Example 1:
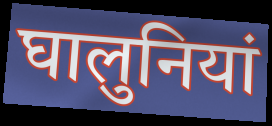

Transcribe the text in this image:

घालुनियां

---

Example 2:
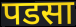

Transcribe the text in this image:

पडसा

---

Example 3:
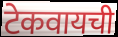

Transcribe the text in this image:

टेकवायची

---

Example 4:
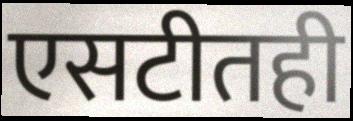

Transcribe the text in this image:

एसटीतही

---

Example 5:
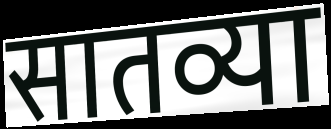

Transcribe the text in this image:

सातव्या